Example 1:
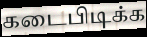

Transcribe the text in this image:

கடைபிடிக்க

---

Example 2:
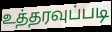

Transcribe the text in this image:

உத்தரவுப்படி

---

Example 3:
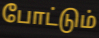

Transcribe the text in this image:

போட்டும்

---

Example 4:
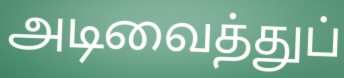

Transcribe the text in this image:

அடிவைத்துப்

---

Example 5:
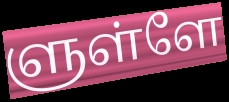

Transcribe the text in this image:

ளுள்ளே